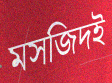
মসজিদই